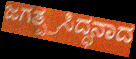
ಜಗತ್ಪ್ರಸಿದ್ಧನಾದ